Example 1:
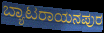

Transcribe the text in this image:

ಬ್ಯಾಟರಾಯನಪುರ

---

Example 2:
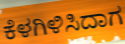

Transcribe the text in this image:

ಕೆಳಗಿಳಿಸಿದಾಗ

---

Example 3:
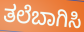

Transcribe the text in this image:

ತಲೆಬಾಗಿಸಿ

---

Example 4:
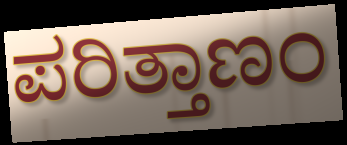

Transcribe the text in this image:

ಪರಿತ್ತಾಣಂ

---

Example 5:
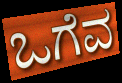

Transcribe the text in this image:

ಒಗೆವ